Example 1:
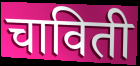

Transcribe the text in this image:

चाविती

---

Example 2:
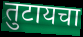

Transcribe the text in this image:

तुटायचा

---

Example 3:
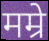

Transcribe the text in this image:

मम्रे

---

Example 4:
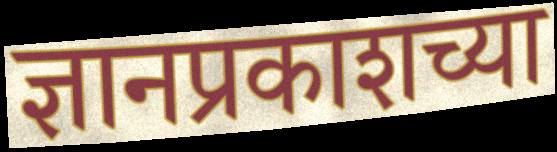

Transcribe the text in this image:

ज्ञानप्रकाशच्या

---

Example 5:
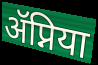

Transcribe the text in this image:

ॲप्निया